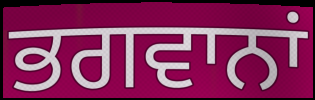
ਭਗਵਾਨਾਂ